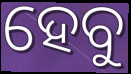
ହେବୁ